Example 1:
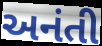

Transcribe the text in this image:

અનંતી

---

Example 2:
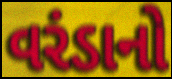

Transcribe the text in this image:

વરંડાનો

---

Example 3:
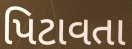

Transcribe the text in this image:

પિટાવતા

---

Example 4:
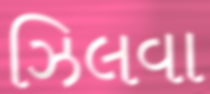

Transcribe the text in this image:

ઝિલવા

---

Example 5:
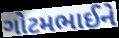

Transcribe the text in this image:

ગોટમભાઈને